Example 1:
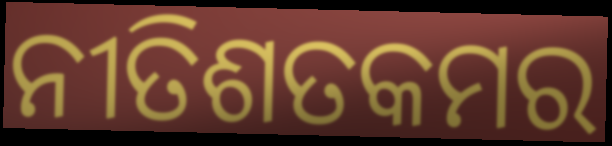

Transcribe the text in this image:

ନୀତିଶତକମର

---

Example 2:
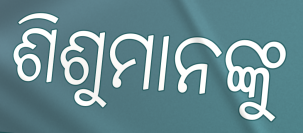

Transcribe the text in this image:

ଶିଶୁମାନଙ୍କୁ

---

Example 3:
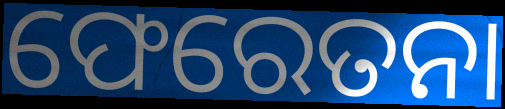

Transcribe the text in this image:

ଫେରେତନା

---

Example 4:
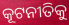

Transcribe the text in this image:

କୂଟନୀତିକୁ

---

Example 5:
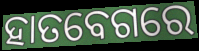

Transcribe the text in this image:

ହାତବେଗରେ